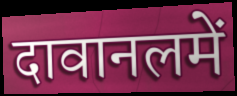
दावानलमें